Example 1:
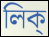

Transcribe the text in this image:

লিক্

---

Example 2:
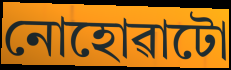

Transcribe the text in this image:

নোহোৱাটো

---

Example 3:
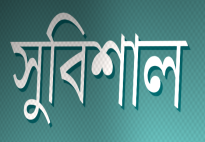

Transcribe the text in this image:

সুবিশাল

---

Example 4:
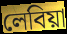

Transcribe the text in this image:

লেবিয়া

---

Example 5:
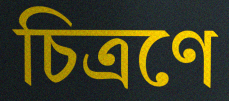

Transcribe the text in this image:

চিত্ৰণে